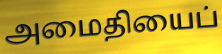
அமைதியைப்